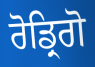
ਰੋਡ੍ਰਿਗੋ